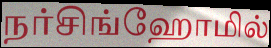
நர்சிங்ஹோமில்